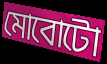
মোবোটো